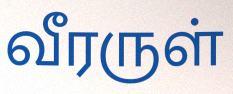
வீரருள்